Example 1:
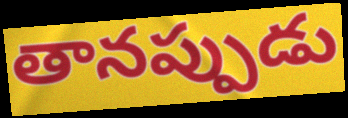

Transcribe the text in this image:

తానప్పుడు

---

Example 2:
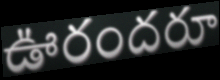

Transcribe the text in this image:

ఊరందరూ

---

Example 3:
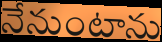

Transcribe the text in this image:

నేనుంటాను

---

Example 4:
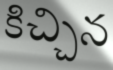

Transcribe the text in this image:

కిచ్చిన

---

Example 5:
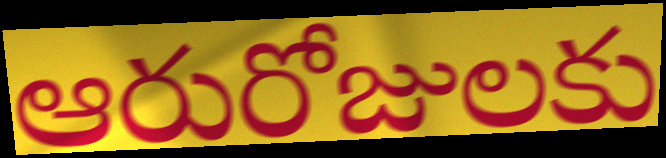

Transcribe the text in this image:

ఆరురోజులకు